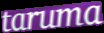
taruma